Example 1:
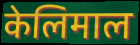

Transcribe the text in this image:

केलिमाल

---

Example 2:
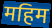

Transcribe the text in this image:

महिम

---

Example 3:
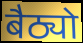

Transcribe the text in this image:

बैठ्यो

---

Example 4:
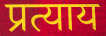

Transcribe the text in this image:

प्रत्याय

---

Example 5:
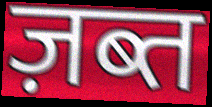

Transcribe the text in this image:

ज़ब्त